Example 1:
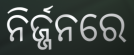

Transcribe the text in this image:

ନିର୍ଜ୍ଜନରେ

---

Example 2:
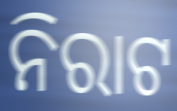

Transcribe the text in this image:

ନିରାଟ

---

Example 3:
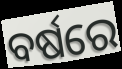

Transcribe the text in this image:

ବର୍ଷରେ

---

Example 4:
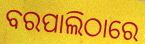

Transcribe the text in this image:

ବରପାଲିଠାରେ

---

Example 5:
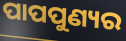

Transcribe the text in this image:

ପାପପୁଣ୍ୟର